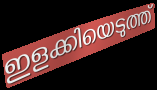
ഇളക്കിയെടുത്ത്